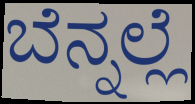
ಬೆನ್ನಲ್ಲೆ